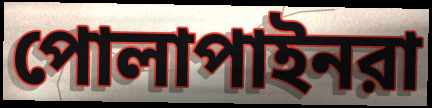
পোলাপাইনরা